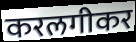
करलगीकर